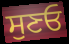
ਸੁਣਓ